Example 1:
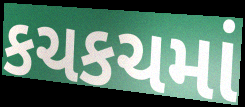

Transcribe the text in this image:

કચકચમાં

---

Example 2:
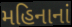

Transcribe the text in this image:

મહિનાનાં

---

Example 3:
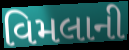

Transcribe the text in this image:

વિમલાની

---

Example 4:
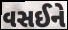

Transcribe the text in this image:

વસઈને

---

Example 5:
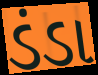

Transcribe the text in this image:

ડંડા